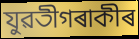
যুৱতীগৰাকীৰ